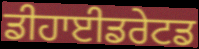
ਡੀਹਾਈਡਰੇਟਡ